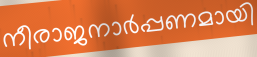
നീരാജനാർപ്പണമായി